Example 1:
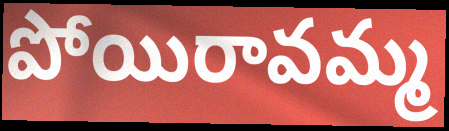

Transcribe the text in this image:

పోయిరావమ్మ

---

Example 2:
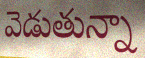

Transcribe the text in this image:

వెడుతున్నా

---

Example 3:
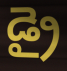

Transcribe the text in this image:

డ్రై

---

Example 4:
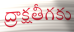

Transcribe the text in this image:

ద్రాక్షతీగకు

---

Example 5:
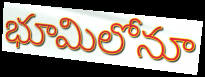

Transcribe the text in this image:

భూమిలోనూ